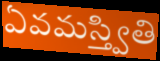
ఏవమస్త్వితి